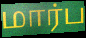
மார்ப